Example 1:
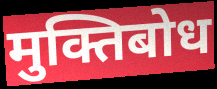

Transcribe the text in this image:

मुक्तिबोध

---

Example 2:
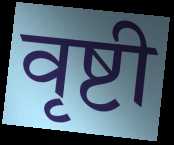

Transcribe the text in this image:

वृष्टी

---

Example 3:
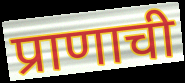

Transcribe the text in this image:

प्राणाची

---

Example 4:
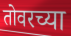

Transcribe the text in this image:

तोवरच्या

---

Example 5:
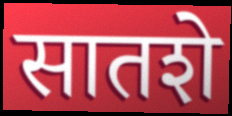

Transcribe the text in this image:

सातशे